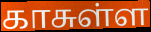
காசுள்ள